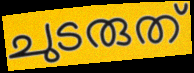
ചുടരുത്